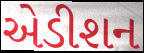
એડીશન